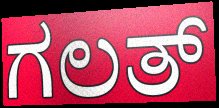
ಗಲತ್